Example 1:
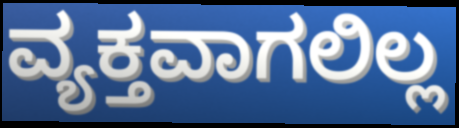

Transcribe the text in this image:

ವ್ಯಕ್ತವಾಗಲಿಲ್ಲ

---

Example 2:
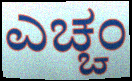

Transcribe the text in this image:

ಎಚ್ಚಂ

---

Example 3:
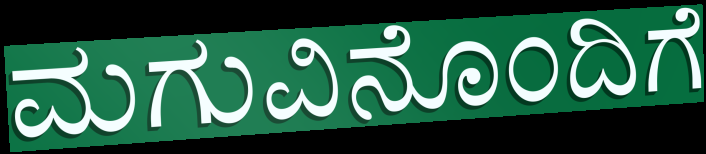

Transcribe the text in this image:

ಮಗುವಿನೊಂದಿಗೆ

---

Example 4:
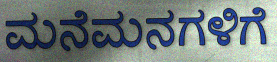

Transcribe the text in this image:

ಮನೆಮನಗಳಿಗೆ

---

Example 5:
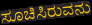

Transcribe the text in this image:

ಸೂಚಿಸಿರುವನು